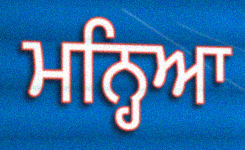
ਮਨ੍ਹਿਆ